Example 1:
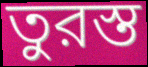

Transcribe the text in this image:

তুরস্ত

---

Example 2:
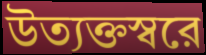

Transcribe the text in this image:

উত্যক্তস্বরে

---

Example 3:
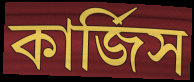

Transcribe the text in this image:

কার্জিস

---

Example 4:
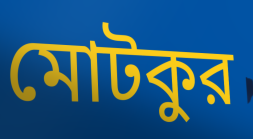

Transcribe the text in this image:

মোটকুর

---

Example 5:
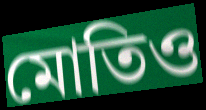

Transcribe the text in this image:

মোতিও